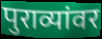
पुराव्यांवर